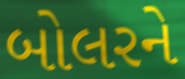
બોલરને